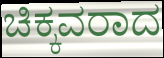
ಚಿಕ್ಕವರಾದ